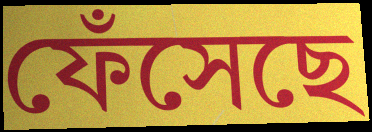
ফেঁসেছে